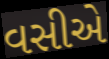
વસીએ